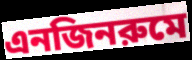
এনজিনরুমে